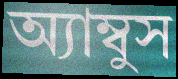
অ্যাম্বুস